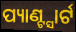
ପ୍ୟାଣ୍ଟ୍ସାର୍ଟ